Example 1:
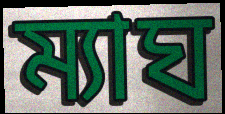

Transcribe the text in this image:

ম্যাঘ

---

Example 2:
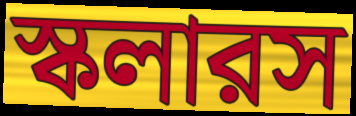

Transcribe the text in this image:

স্কলারস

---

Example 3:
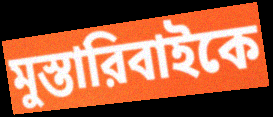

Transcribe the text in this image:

মুস্তারিবাইকে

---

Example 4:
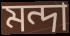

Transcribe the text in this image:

মন্দা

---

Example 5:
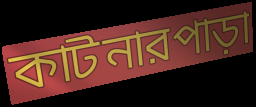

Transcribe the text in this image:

কাটনারপাড়া